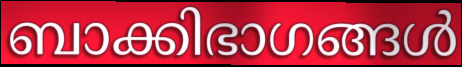
ബാക്കിഭാഗങ്ങൾ